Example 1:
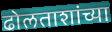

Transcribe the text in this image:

ढोलताशांच्या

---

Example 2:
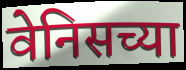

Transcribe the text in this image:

वेनिसच्या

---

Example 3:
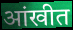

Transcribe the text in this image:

आंखीत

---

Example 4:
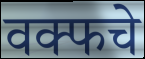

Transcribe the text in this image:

वक्फचे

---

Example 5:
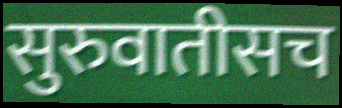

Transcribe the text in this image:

सुरुवातीसच